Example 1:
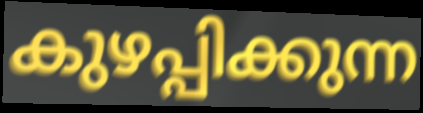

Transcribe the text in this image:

കുഴപ്പിക്കുന്ന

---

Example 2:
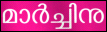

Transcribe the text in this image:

മാർച്ചിനു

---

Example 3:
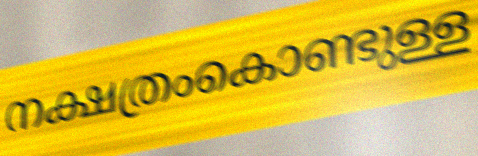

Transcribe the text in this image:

നക്ഷത്രംകൊണ്ടുള്ള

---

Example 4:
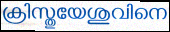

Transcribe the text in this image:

ക്രിസ്തുയേശുവിനെ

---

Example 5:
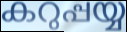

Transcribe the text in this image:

കറുപ്പയ്യ